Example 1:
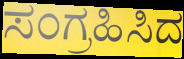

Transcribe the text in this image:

ಸಂಗ್ರಹಿಸಿದ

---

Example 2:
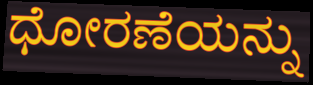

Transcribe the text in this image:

ಧೋರಣೆಯನ್ನು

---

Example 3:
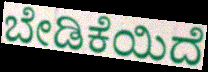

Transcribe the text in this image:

ಬೇಡಿಕೆಯಿದೆ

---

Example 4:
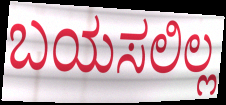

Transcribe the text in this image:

ಬಯಸಲಿಲ್ಲ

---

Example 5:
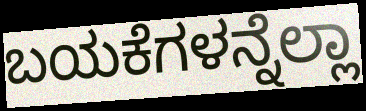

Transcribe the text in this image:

ಬಯಕೆಗಳನ್ನೆಲ್ಲಾ